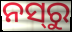
ନସ୍‍ରୁ